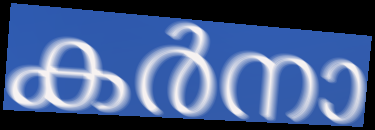
കർനാ